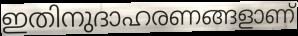
ഇതിനുദാഹരണങ്ങളാണ്